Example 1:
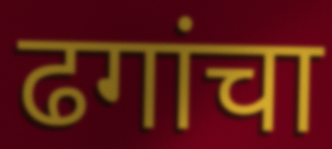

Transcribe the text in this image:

ढगांचा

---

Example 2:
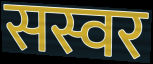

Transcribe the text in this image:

सस्वर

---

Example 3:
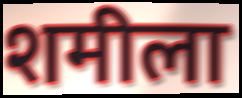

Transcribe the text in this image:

शमीला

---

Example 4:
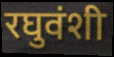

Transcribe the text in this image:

रघुवंशी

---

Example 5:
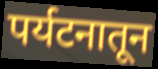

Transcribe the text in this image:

पर्यटनातून